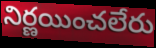
నిర్ణయించలేరు